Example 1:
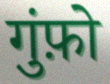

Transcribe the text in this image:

गुंफ़ो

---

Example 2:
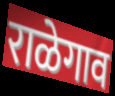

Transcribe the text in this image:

राळेगाव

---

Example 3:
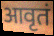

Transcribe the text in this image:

आवृतं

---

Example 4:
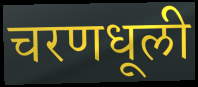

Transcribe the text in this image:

चरणधूली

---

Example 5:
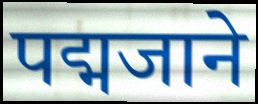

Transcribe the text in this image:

पद्मजाने